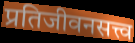
प्रतिजीवनसत्त्व